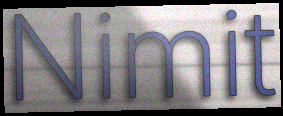
Nimit